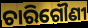
ଚାରିଗୌଣୀ